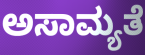
ಅಸಾಮ್ಯತೆ